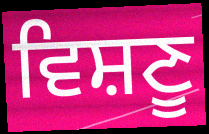
ਵਿਸ਼ਣੂ